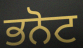
ਭਨੋਟ